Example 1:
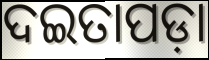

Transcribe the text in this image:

ଦଇତାପଡ଼ା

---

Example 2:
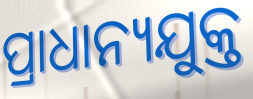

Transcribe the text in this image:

ପ୍ରାଧାନ୍ୟଯୁକ୍ତ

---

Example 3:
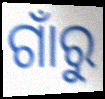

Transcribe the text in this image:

ଗାଁରୁ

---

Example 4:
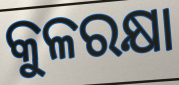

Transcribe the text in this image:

କୁଳରକ୍ଷା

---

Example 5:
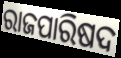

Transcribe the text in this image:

ରାଜପାରିଷଦ